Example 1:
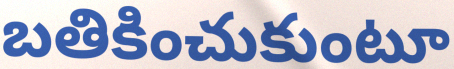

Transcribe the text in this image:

బతికించుకుంటూ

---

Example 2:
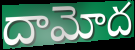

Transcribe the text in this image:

దామోద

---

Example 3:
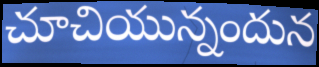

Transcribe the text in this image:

చూచియున్నందున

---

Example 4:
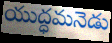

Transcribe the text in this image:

యుద్ధమనెడు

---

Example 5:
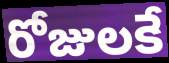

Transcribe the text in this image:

రోజులకే